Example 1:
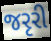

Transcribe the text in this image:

જરૃરી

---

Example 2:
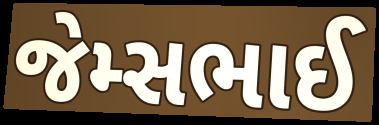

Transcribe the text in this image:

જેમ્સભાઈ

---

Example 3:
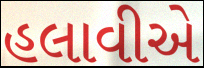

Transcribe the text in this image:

હલાવીએ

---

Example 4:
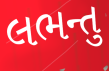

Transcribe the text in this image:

લભન્તુ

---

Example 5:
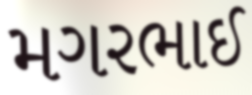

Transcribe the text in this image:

મગરભાઈ